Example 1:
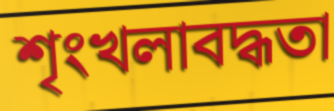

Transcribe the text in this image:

শৃংখলাবদ্ধতা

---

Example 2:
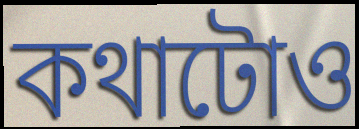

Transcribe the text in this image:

কথাটোও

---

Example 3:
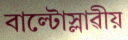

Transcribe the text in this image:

বাল্টোস্লাৱীয়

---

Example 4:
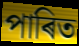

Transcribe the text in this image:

পাৰিত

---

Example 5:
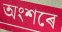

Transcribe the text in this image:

অংশৰে